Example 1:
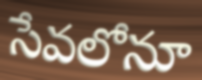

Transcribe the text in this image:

సేవలోనూ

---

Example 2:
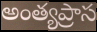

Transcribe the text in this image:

అంత్యప్రాస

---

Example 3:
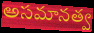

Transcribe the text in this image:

అసమానత్వ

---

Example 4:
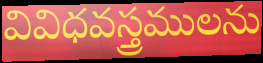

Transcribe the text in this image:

వివిధవస్త్రములను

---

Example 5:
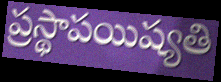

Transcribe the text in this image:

ప్రస్థాపయిష్యతి